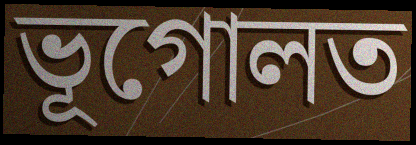
ভূগোলত